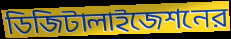
ডিজিটালাইজেশনের